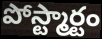
పోస్ట్మార్టం